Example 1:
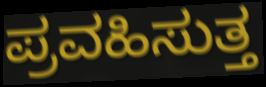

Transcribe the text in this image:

ಪ್ರವಹಿಸುತ್ತ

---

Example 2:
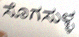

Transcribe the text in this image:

ಸೊಗಸುಳ್ಳ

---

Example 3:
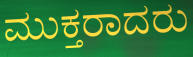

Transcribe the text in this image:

ಮುಕ್ತರಾದರು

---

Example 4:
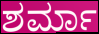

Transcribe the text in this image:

ಶರ್ಮಾ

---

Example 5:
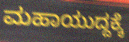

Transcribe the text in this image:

ಮಹಾಯುದ್ದಕ್ಕೆ